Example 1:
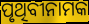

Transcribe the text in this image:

ପୃଥିବୀନାମକ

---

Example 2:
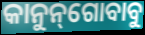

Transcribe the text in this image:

କାନୁନ୍‌ଗୋବାବୁ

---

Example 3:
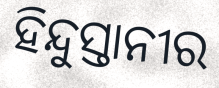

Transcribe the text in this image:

ହିନ୍ଦୁସ୍ତାନୀର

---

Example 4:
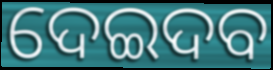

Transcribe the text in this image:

ଦେଇଦବ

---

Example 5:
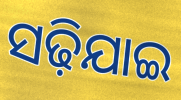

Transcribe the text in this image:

ସଢ଼ିଯାଇ